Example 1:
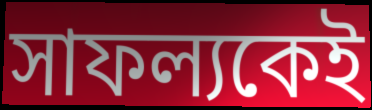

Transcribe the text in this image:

সাফল্যকেই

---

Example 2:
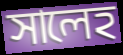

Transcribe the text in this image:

সালেহ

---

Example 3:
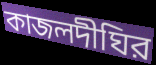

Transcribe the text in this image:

কাজলদীঘির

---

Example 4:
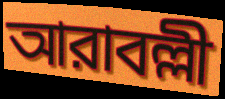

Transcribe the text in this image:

আরাবল্লী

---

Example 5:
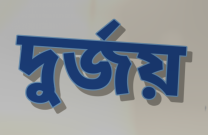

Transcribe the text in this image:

দুর্জয়